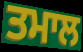
ਤਮਾਲ